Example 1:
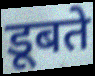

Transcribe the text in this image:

डूबते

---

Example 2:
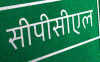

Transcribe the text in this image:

सीपीसीएल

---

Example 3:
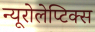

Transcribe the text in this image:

न्यूरोलेप्टिक्स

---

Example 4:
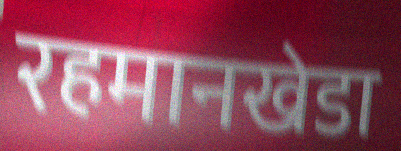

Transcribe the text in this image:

रहमानखेडा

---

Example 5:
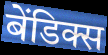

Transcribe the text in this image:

बेंडिक्स